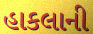
હાકલાની